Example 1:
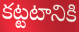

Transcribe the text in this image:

కట్టటానికి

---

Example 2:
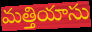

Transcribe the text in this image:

మత్తియాసు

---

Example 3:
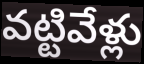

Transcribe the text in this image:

వట్టివేళ్లు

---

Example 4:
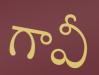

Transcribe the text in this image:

గావీ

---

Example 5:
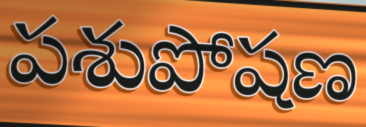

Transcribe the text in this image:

పశుపోషణ